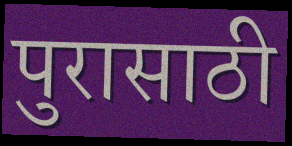
पुरासाठी